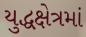
યુદ્ધક્ષેત્રમાં